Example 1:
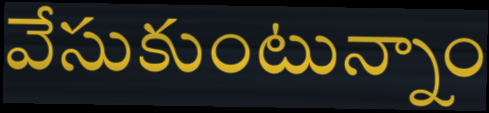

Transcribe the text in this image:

వేసుకుంటున్నాం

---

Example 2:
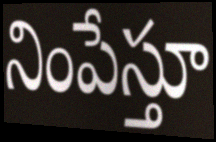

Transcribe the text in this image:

నింపేస్తూ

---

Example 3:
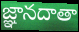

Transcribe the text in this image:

జ్ఞానదాతా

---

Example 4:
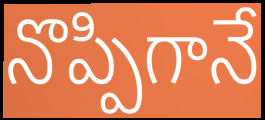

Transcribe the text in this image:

నొప్పిగానే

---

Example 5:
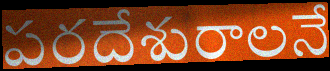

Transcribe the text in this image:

పరదేశురాలనే